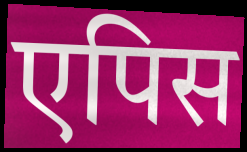
एपिस